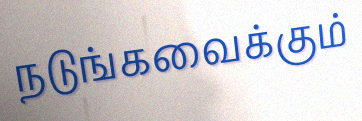
நடுங்கவைக்கும்